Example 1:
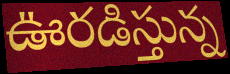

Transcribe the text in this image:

ఊరడిస్తున్న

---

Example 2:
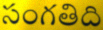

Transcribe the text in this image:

సంగతిది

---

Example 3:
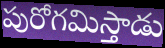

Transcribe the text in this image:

పురోగమిస్తాడు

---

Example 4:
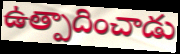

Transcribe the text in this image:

ఉత్పాదించాడు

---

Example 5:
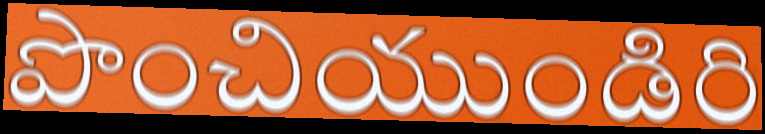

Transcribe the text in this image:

పొంచియుండిరి